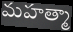
మహత్మా